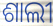
ଶାଲୀ